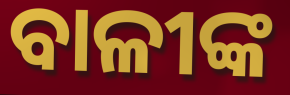
ବାଳୀଙ୍କ